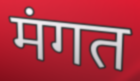
मंगत